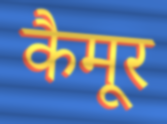
कैमूर